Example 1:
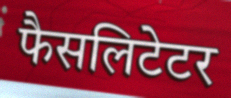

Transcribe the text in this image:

फैसलिटेटर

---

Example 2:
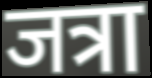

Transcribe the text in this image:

जत्रा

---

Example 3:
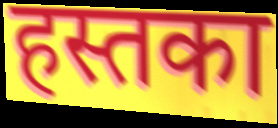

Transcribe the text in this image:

हस्तका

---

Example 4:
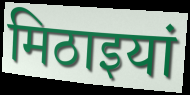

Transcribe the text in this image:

मिठाइयां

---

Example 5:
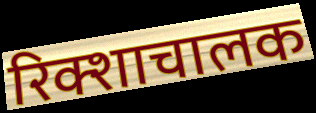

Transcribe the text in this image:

रिक्शाचालक